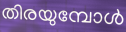
തിരയുമ്പോൾ